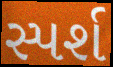
સ્પર્શ